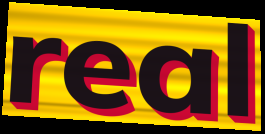
real